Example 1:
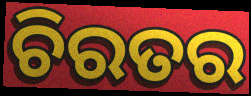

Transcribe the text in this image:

ଚିରତର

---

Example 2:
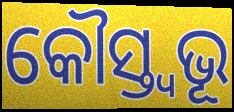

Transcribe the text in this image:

କୌସ୍ତ୍ୱଭୂ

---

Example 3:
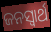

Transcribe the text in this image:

ଜନସ୍ଵାର୍ଥ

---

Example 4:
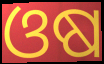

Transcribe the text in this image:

ଓଷ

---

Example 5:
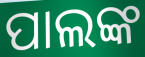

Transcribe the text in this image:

ପାଲଙ୍କ